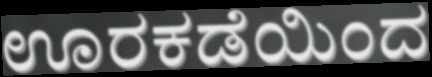
ಊರಕಡೆಯಿಂದ